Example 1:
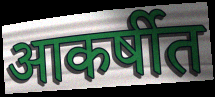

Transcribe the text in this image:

आकर्षीत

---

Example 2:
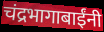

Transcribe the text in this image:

चंद्रभागाबाईंनी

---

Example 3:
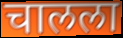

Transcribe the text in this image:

चालला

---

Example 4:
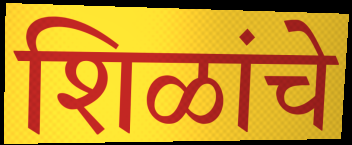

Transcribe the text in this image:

शिळांचे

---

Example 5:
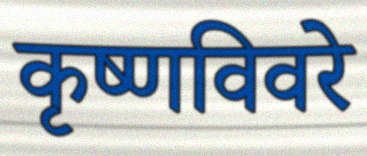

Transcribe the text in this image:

कृष्णविवरे